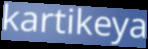
kartikeya